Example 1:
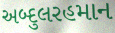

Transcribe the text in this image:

અબ્દુલરહમાન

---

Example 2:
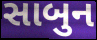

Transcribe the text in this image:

સાબુન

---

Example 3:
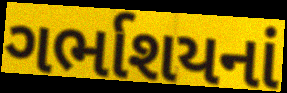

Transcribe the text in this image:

ગર્ભાશયનાં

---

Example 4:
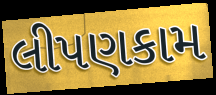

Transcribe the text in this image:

લીપણકામ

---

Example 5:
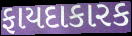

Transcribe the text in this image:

ફાયદાકારક